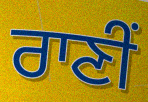
ਰਾਣੀਂ